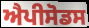
ਐਪੀਸੋਡਸ